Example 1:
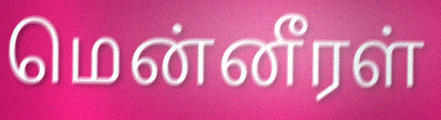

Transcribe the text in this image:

மென்னீரள்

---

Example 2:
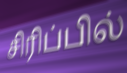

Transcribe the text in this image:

சிரிப்பில்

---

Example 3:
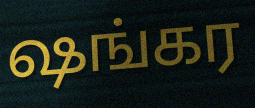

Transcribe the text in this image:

ஷங்கர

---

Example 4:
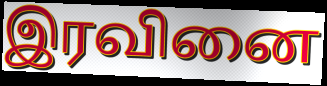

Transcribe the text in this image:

இரவினை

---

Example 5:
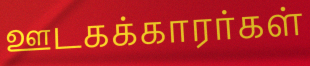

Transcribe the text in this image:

ஊடகக்காரர்கள்